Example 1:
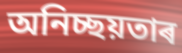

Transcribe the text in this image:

অনিচ্ছয়তাৰ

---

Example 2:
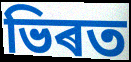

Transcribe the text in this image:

ভিৰত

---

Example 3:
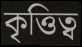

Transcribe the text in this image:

কৃত্তিত্ব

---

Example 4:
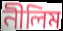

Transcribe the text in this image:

নীলিম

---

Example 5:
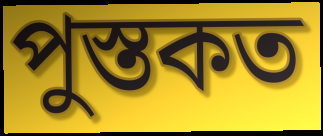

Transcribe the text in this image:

পুস্তকত